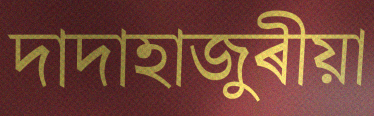
দাদাহাজুৰীয়া